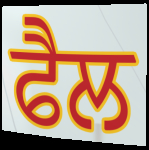
ਫੈਲ